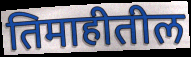
तिमाहीतील